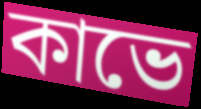
কাভে